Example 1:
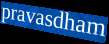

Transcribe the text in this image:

pravasdham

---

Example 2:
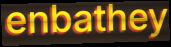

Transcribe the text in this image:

enbathey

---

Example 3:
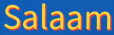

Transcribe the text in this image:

Salaam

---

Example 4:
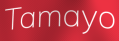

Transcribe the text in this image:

Tamayo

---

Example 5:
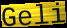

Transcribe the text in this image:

Geli